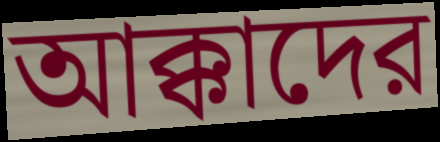
আক্কাদের